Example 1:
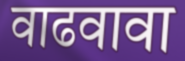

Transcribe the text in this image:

वाढवावा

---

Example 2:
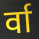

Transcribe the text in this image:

र्वा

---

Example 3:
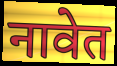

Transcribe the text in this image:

नावेत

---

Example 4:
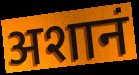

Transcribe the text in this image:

अशानं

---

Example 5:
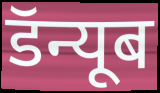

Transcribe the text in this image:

डॅन्यूब